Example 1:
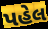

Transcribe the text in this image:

પહેલ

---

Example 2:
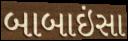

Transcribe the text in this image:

બાબાઇંસા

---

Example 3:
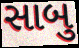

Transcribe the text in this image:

સાબુ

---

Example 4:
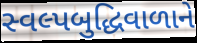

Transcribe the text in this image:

સ્વલ્પબુદ્ધિવાળાને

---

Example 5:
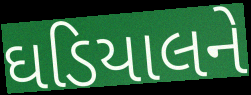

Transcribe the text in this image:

ઘડિયાલને